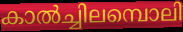
കാൽച്ചിലമ്പൊലി